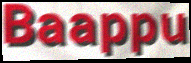
Baappu